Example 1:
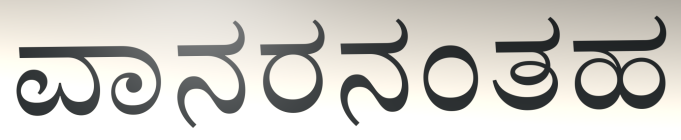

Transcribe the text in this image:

ವಾನರನಂತಹ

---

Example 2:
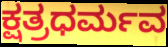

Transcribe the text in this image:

ಕ್ಷತ್ರಧರ್ಮವ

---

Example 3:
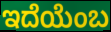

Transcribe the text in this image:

ಇದೆಯೆಂಬ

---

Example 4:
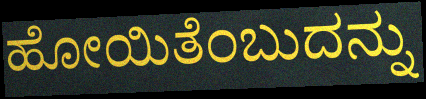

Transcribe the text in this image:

ಹೋಯಿತೆಂಬುದನ್ನು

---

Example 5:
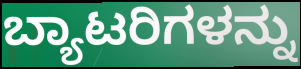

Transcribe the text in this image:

ಬ್ಯಾಟರಿಗಳನ್ನು